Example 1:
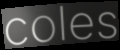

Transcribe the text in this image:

coles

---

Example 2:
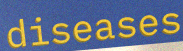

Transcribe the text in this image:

diseases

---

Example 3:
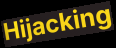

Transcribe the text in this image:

Hijacking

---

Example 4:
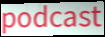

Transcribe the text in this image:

podcast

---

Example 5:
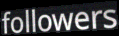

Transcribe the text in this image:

followers